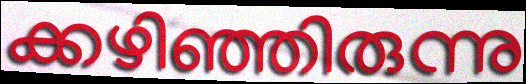
ക്കഴിഞ്ഞിരുന്നു